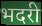
भदरी